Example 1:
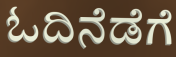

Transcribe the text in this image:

ಓದಿನೆಡೆಗೆ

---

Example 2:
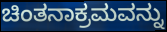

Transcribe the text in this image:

ಚಿಂತನಾಕ್ರಮವನ್ನು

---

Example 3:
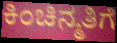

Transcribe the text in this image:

ಕಿಂಚಿನ್ಮತಿಗೆ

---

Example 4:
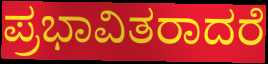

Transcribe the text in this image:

ಪ್ರಭಾವಿತರಾದರೆ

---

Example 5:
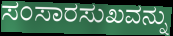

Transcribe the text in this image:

ಸಂಸಾರಸುಖವನ್ನು